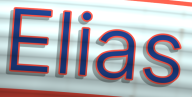
Elias